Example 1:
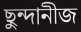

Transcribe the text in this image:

ছুন্দানীজ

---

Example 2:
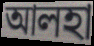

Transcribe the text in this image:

আলহা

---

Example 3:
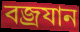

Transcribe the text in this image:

বজ্ৰযান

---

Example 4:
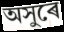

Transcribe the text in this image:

অসুৰে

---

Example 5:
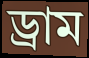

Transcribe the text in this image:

ড্ৰাম